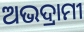
ଅଭଦ୍ରାମୀ